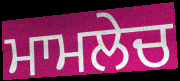
ਮਾਮਲੇਚ